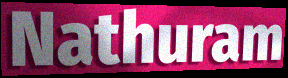
Nathuram